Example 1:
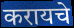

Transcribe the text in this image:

करायचे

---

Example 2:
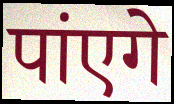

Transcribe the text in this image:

पांएगे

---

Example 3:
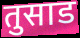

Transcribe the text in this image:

तुसाड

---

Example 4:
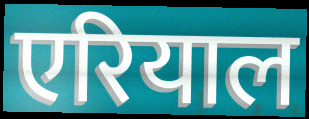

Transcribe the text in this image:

एरियाल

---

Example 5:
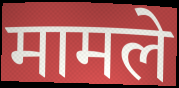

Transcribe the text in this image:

मामले